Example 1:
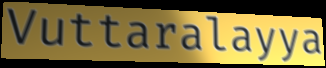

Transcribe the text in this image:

Vuttaralayya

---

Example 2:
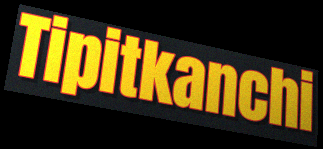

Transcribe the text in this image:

Tipitkanchi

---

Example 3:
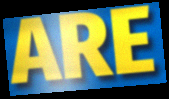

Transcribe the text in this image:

ARE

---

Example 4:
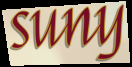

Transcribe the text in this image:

suny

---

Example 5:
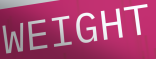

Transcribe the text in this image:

WEIGHT